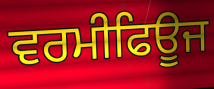
ਵਰਮੀਫਿਊਜ